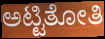
ಅಟ್ಟಿತೋತಿ